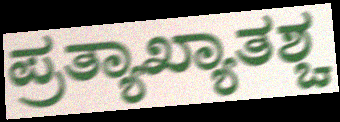
ಪ್ರತ್ಯಾಖ್ಯಾತಶ್ಚ